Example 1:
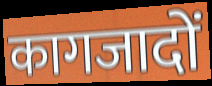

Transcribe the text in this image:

कागजादों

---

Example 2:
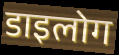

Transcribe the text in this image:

डाइलोग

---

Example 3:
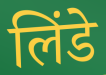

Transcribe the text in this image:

लिंडे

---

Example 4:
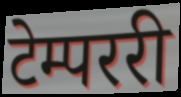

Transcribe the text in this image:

टेम्पररी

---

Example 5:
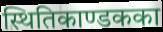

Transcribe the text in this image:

स्थितिकाण्डकका